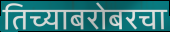
तिच्याबरोबरचा